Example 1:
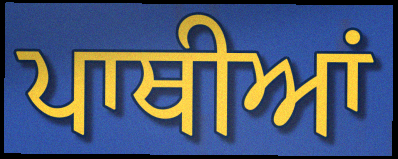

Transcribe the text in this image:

ਪਾਥੀਆਂ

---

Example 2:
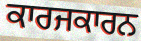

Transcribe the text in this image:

ਕਾਰਜਕਾਰਨ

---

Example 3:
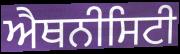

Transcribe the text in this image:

ਐਥਨੀਸਿਟੀ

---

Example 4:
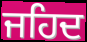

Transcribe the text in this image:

ਜਹਿਦ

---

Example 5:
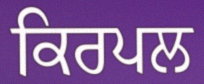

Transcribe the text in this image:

ਕਿਰਪਲ